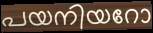
പയനിയറോ